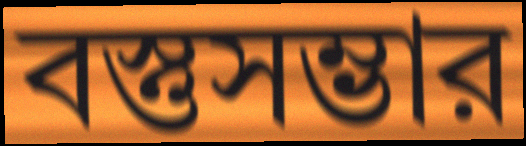
বস্তুসম্ভার